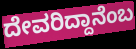
ದೇವರಿದ್ದಾನೆಂಬ